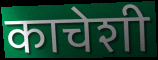
काचेशी